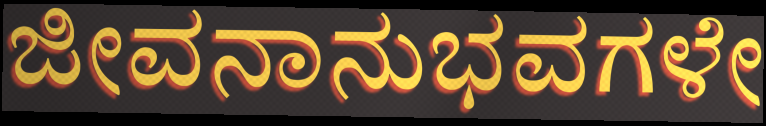
ಜೀವನಾನುಭವಗಳೇ